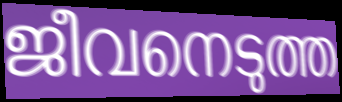
ജീവനെടുത്ത